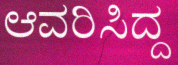
ಆವರಿಸಿದ್ದ